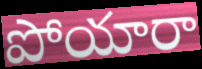
పోయారా